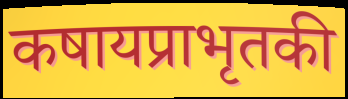
कषायप्राभृतकी